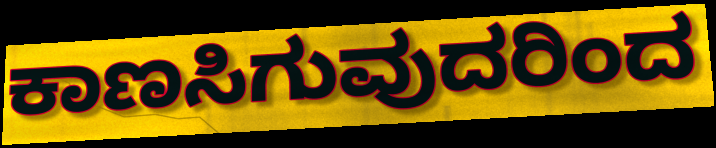
ಕಾಣಸಿಗುವುದರಿಂದ